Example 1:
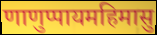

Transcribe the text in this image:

णाणुप्पायमहिमासु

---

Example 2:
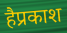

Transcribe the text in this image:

हैप्रकाश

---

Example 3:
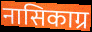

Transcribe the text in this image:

नासिकाग्र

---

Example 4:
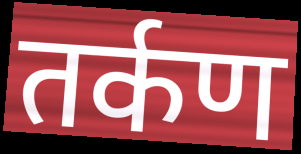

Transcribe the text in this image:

तर्कण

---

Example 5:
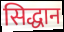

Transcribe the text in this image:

सिद्धान